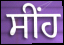
ਸੀਂਹ